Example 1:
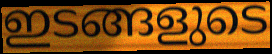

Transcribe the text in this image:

ഇടങ്ങളുടെ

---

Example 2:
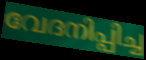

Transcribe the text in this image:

വേദനിപ്പിച്ച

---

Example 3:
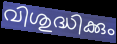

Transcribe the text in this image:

വിശുദ്ധിക്കും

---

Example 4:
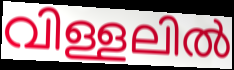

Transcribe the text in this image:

വിള്ളലിൽ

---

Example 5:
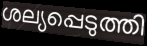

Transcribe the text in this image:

ശല്യപ്പെടുത്തി